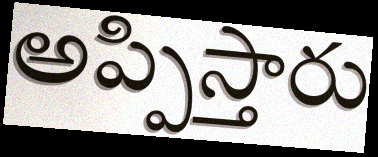
అప్పిస్తారు